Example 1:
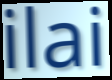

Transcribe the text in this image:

ilai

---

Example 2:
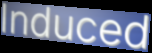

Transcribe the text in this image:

Induced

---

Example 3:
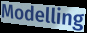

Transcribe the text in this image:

Modelling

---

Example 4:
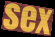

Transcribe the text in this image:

sex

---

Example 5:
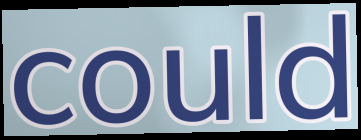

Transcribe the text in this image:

could